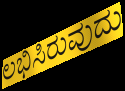
ಲಭಿಸಿರುವುದು